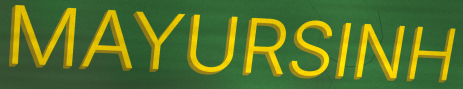
MAYURSINH